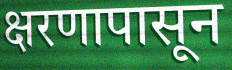
क्षरणापासून